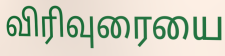
விரிவுரையை